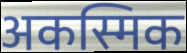
अकस्मिक